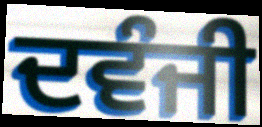
ਦਵੰਜੀ